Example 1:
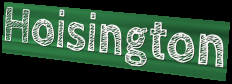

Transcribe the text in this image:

Hoisington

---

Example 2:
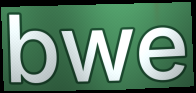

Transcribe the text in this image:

bwe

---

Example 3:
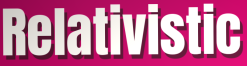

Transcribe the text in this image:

Relativistic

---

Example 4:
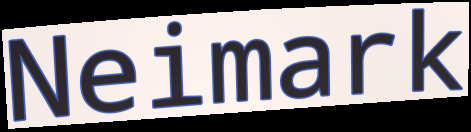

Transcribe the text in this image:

Neimark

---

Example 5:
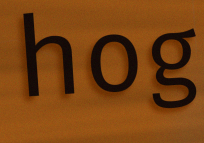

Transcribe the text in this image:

hog